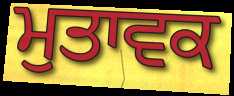
ਮੁਤਾਵਕ